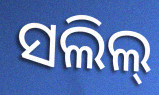
ସଲିଲ୍